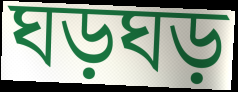
ঘড়ঘড়